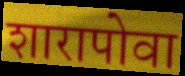
शारापोवा